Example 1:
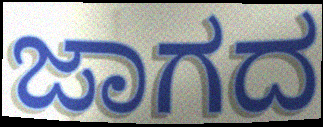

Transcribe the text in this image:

ಜಾಗದ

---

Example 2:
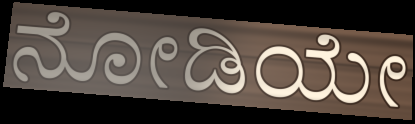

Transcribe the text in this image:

ನೋಡಿಯೇ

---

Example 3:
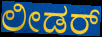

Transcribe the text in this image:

ಲೀಡರ್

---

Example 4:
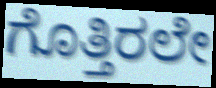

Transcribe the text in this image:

ಗೊತ್ತಿರಲೇ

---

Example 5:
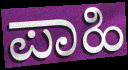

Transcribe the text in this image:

ಪಾಹಿ